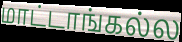
மாட்டாங்கல்ல